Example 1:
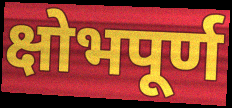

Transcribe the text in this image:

क्षोभपूर्ण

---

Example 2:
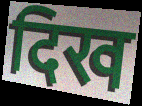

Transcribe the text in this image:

दिख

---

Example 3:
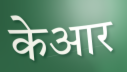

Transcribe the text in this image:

केआर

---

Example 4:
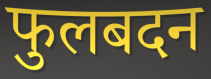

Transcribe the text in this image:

फुलबदन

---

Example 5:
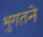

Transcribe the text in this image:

भुगतने